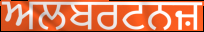
ਅਲਬਰਟਨਜ਼